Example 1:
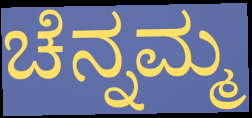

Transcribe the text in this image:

ಚೆನ್ನಮ್ಮ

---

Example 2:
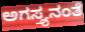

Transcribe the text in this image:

ಅಗಸ್ತ್ಯನಂತೆ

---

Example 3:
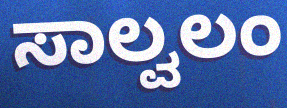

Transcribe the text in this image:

ಸಾಲ್ವಲಂ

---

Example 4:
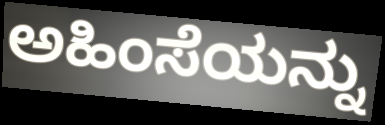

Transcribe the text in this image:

ಅಹಿಂಸೆಯನ್ನು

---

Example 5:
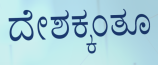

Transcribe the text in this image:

ದೇಶಕ್ಕಂತೂ